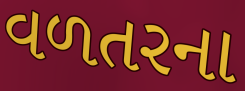
વળતરના